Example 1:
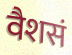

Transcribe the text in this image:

वैशसं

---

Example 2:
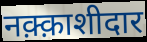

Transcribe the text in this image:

नक़्क़ाशीदार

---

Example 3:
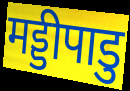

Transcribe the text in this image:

मड्डीपाडु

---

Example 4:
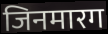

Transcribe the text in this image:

जिनमारग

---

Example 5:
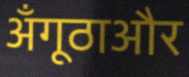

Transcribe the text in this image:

अँगूठाऔर